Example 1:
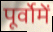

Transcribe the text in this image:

पूर्वोमें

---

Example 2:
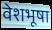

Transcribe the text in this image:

वेशभूषा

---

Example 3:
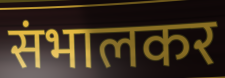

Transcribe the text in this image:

संभालकर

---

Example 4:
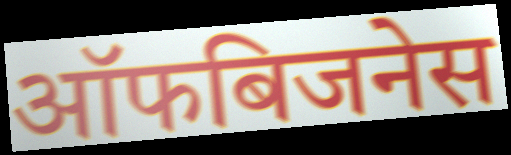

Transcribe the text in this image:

ऑफबिजनेस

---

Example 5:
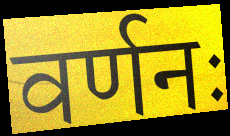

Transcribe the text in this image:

वर्णनः